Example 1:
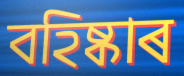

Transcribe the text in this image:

বহিষ্কাৰ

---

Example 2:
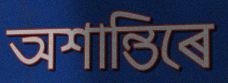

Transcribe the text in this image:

অশান্তিৰে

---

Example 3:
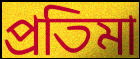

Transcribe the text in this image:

প্ৰতিমা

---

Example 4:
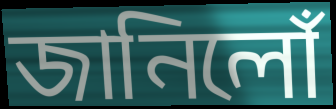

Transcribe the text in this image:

জানিলোঁ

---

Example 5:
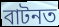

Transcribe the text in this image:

বাটনত